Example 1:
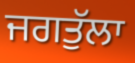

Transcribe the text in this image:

ਜਗਤੁੱਲਾ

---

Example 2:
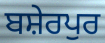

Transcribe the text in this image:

ਬਸ਼ੇਰਪੁਰ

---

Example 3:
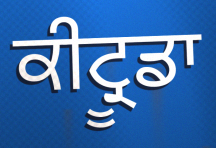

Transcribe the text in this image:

ਕੀਟ੍ਰੂਡਾ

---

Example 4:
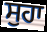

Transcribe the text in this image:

ਸੁਹਾ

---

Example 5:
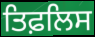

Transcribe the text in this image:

ਤਿਫ਼ਲਿਸ